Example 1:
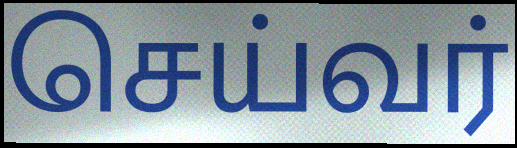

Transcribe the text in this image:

செய்வர்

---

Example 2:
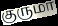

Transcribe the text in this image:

குருமா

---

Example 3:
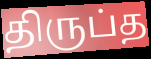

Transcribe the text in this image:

திருப்த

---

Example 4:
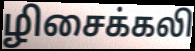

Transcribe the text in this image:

ழிசைக்கலி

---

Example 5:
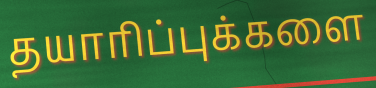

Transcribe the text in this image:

தயாரிப்புக்களை